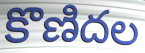
కొణిదల